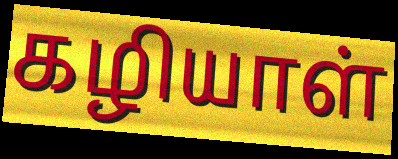
கழியாள்